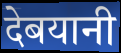
देबयानी